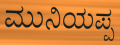
ಮುನಿಯಪ್ಪ